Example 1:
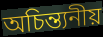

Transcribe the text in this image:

অচিন্ত্যনীয়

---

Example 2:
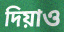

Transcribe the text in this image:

দিয়াও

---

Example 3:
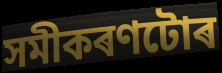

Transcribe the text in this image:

সমীকৰণটোৰ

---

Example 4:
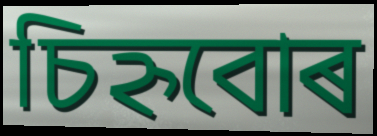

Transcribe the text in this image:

চিহ্নবোৰ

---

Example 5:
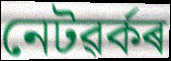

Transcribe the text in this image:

নেটৱৰ্কৰ